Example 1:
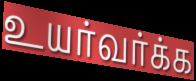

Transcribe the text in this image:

உயர்வர்க்க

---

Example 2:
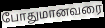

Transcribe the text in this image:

போதுமானவரை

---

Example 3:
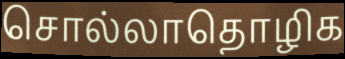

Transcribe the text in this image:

சொல்லாதொழிக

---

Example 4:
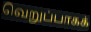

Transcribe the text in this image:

வெறுப்பாகக்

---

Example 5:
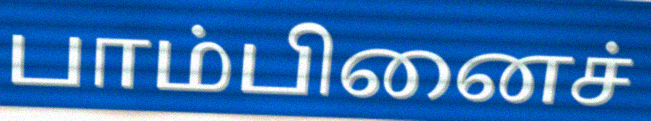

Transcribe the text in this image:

பாம்பினைச்